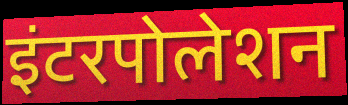
इंटरपोलेशन